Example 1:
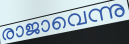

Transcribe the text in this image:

രാജാവെന്നു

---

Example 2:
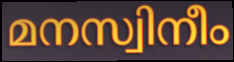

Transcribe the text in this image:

മനസ്വിനീം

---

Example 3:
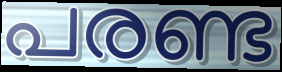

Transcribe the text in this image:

പരണ്ട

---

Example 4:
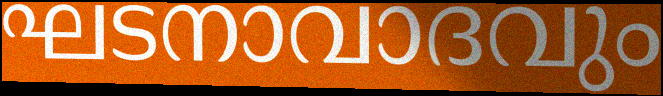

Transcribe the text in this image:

ഘടനാവാദവും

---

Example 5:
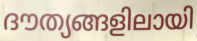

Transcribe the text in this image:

ദൗത്യങ്ങളിലായി